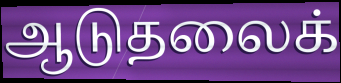
ஆடுதலைக்